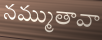
నమ్ముతావా